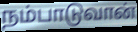
நம்பாடுவான்